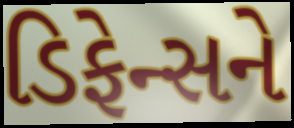
ડિફેન્સને